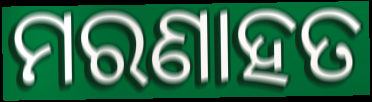
ମରଣାହତ